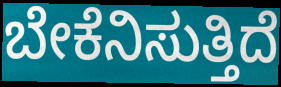
ಬೇಕೆನಿಸುತ್ತಿದೆ